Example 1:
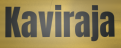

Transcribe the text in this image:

Kaviraja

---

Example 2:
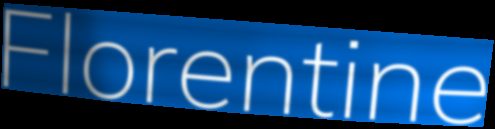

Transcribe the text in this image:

Florentine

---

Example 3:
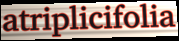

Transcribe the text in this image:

atriplicifolia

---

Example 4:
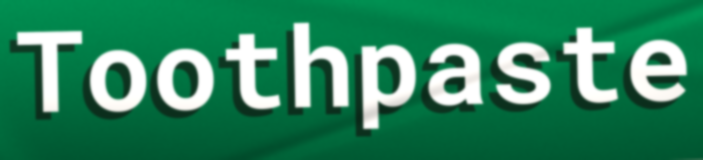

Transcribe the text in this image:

Toothpaste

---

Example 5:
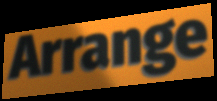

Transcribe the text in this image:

Arrange